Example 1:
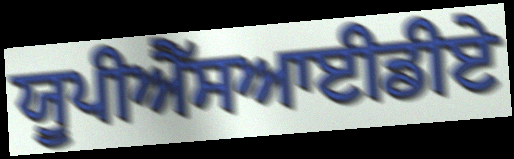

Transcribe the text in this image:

ਯੂਪੀਐੱਸਆਈਡੀਏ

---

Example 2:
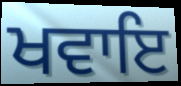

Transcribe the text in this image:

ਖਵਾਇ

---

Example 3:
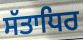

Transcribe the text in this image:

ਸੱਤਾਧਿਰ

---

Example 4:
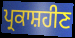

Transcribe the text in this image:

ਪ੍ਰਕਾਸ਼ਹੀਣ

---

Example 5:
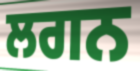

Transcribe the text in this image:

ਲਗਨ